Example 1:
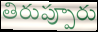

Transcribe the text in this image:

తిరుప్పూరు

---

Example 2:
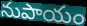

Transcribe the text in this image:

నుపాయం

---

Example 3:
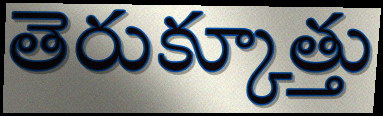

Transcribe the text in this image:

తెరుక్కూత్తు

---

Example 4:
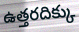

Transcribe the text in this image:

ఉత్తరదిక్కు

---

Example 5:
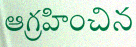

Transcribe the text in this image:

ఆగ్రహించిన